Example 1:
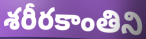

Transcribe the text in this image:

శరీరకాంతిని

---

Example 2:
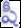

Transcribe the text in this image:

షీ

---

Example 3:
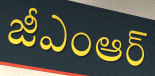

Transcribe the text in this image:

జీఎంఆర్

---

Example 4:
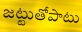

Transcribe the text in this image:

జట్టుతోపాటు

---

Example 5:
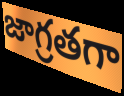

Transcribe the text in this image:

జాగ్రతగా